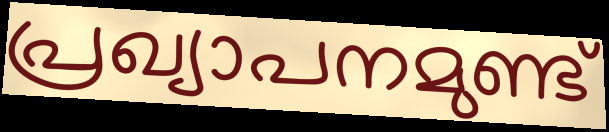
പ്രഖ്യാപനമുണ്ട്